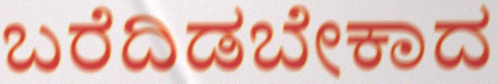
ಬರೆದಿಡಬೇಕಾದ